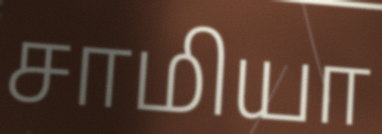
சாமியா